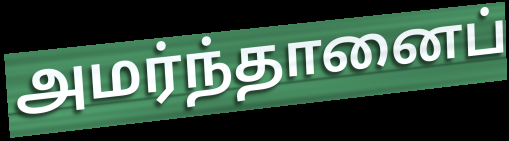
அமர்ந்தானைப்